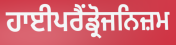
ਹਾਈਪਰੈਂਡ੍ਰੋਜਨਿਜ਼ਮ